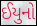
ઈયુનો